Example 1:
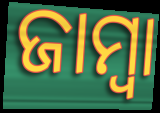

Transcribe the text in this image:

ଜାମ୍ବା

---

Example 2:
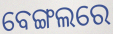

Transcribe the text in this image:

ବେଙ୍ଗଲରେ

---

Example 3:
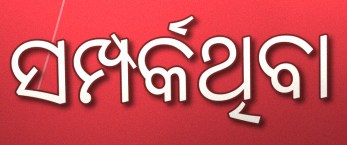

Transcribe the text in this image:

ସମ୍ପର୍କଥିବା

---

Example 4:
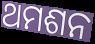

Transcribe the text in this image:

ଥମଶନ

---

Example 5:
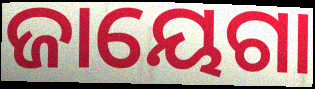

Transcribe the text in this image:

ଜାୟେଗା